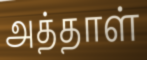
அத்தாள்